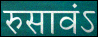
रुसावंऽ